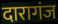
दारागंज